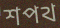
শপথ